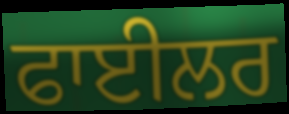
ਫਾਈਲਰ